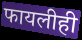
फायलीही